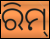
ରିମ୍